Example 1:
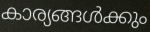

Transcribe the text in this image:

കാര്യങ്ങൾക്കും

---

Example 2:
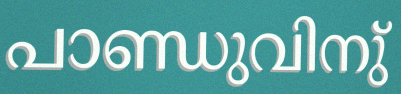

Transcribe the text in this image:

പാണ്ഡുവിനു്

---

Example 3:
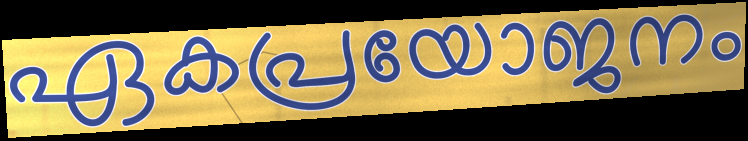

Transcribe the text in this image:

ഏകപ്രയോജനം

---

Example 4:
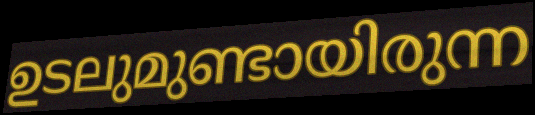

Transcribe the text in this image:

ഉടലുമുണ്ടായിരുന്ന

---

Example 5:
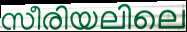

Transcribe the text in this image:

സീരിയലിലെ